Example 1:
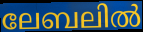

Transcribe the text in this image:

ലേബലിൽ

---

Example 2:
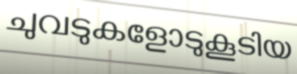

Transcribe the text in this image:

ചുവടുകളോടുകൂടിയ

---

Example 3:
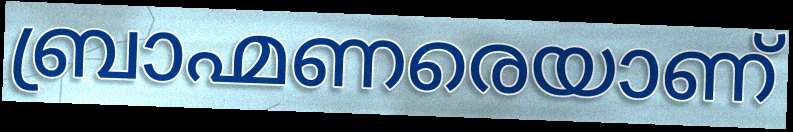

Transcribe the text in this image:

ബ്രാഹ്മണരെയാണ്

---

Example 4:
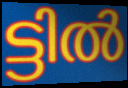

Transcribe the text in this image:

ട്ടിൽ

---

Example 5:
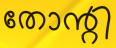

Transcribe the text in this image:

തോന്റി